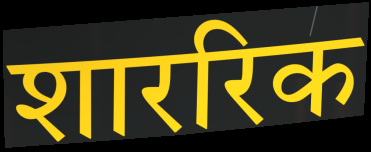
शाररिक